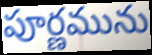
పూర్ణమును